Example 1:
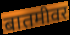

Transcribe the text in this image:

बातमीवर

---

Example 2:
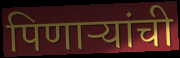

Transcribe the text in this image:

पिणाऱ्यांची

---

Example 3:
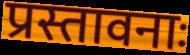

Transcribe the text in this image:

प्रस्तावनाः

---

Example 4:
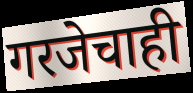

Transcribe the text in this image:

गरजेचाही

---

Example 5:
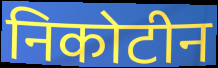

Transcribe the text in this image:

निकोटीन